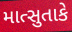
માત્સુતાકે